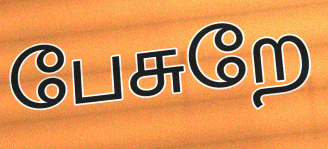
பேசுறே